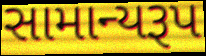
સામાન્યરૂપ